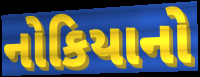
નોકિયાનો